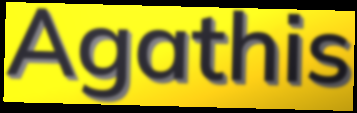
Agathis